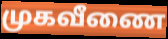
முகவீணை